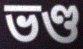
ভণ্ড